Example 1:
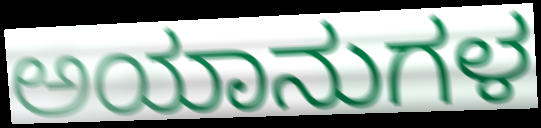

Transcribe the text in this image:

ಅಯಾನುಗಳ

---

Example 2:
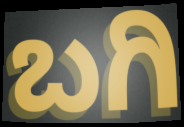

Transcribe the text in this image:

ಬಗಿ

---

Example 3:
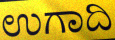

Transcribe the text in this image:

ಉಗಾದಿ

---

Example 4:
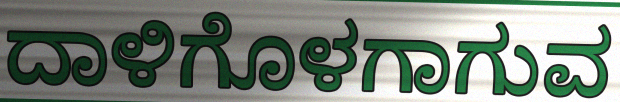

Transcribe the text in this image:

ದಾಳಿಗೊಳಗಾಗುವ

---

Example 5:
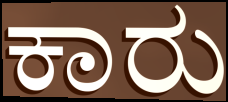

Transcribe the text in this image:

ಕಾರು